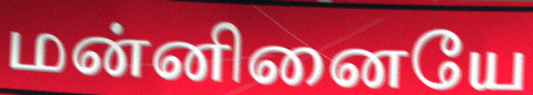
மன்னினையே